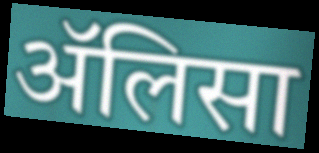
ॲलिसा